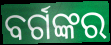
ବର୍ଗଙ୍କର